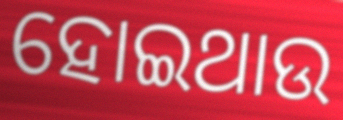
ହୋଇଥାଉ